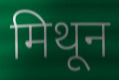
मिथून